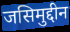
जसिमुद्दीन